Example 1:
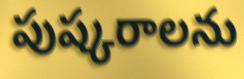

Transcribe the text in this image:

పుష్కరాలను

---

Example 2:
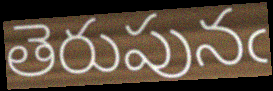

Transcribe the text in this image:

తెరుపునఁ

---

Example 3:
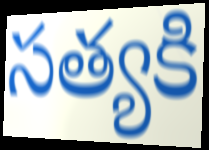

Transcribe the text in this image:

సత్యకి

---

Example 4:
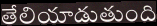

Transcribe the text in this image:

తేలియాడుతుంది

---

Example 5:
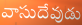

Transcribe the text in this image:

వాసుదేవుడు